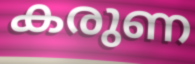
കരുണ